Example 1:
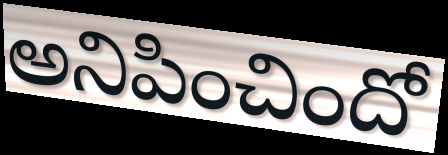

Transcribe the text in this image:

అనిపించిందో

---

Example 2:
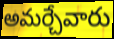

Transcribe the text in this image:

అమర్చేవారు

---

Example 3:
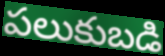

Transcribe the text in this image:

పలుకుబడి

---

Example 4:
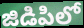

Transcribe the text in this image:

జిడిపిలో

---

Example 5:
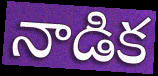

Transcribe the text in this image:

నాడిక